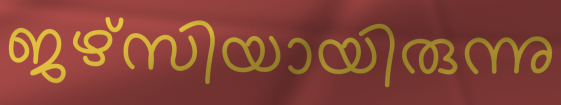
ജഴ്സിയായിരുന്നു